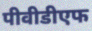
पीवीडीएफ